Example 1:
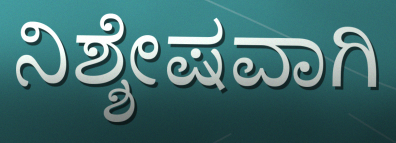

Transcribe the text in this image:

ನಿಶ್ಶೇಷವಾಗಿ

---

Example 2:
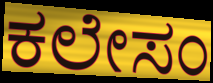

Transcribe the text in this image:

ಕಲೇಸಂ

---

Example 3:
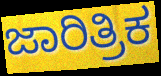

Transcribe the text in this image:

ಜಾರಿತ್ರಿಕ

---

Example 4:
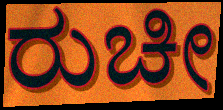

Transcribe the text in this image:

ರುಚೀ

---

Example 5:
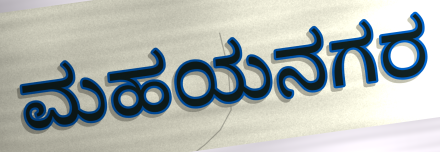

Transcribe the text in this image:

ಮಹಯನಗರ